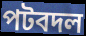
পটবদল